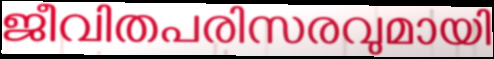
ജീവിതപരിസരവുമായി